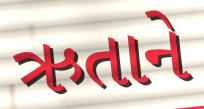
ઋતાને